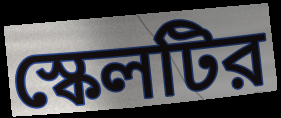
স্কেলটির